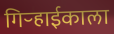
गिऱ्हाईकाला